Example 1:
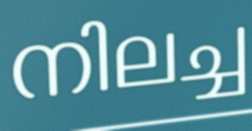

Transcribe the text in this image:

നിലച്ച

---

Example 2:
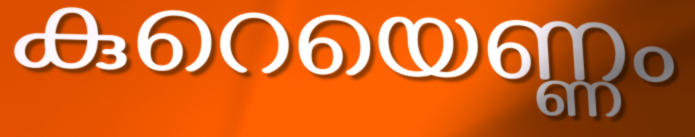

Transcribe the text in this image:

കുറെയെണ്ണം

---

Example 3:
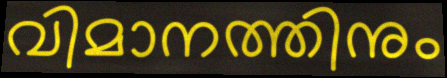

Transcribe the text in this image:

വിമാനത്തിനും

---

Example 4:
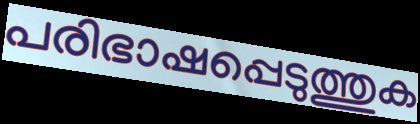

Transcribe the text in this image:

പരിഭാഷപ്പെടുത്തുക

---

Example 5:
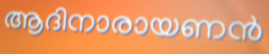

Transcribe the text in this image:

ആദിനാരായണൻ